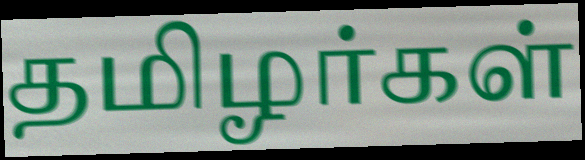
தமிழர்கள்